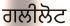
ਗਲੀਲੋਟ